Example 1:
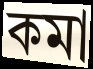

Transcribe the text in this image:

কমা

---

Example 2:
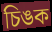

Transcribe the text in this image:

চিঙক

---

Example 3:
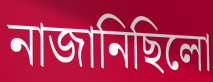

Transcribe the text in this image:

নাজানিছিলো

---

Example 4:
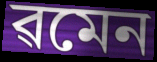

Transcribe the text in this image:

ৱমেন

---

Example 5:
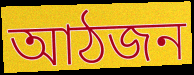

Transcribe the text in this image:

আঠজন